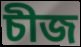
চীজ